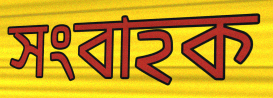
সংবাহক